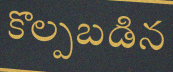
కొల్పబడిన